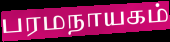
பரமநாயகம்